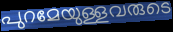
പുറമേയുള്ളവരുടെ